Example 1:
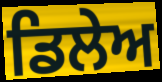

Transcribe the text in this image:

ਡਿਲੇਅ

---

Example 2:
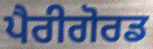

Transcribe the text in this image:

ਪੈਰੀਗੋਰਡ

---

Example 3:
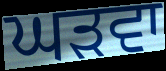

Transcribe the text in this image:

ਘੜਵਾ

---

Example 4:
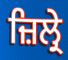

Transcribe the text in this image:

ਜ਼ਿਲ੍ਰੇ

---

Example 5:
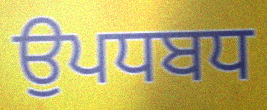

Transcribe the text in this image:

ਉਪਧਬਧ